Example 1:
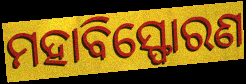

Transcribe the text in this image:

ମହାବିସ୍ଫୋରଣ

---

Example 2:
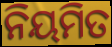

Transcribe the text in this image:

ନିୟମିତ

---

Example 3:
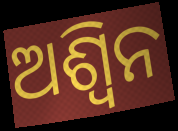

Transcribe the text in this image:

ଅଶ୍ଵିନ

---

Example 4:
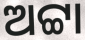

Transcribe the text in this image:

ଅଟ୍ଟା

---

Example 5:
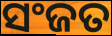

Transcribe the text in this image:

ସଂଜତ